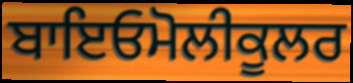
ਬਾਇਓਮੋਲੀਕੂਲਰ